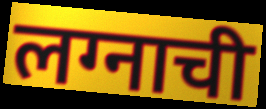
लग्नाची